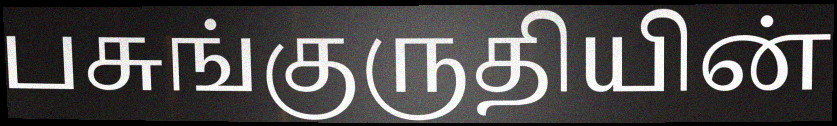
பசுங்குருதியின்